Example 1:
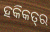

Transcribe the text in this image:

ହକିକତ୍‌ର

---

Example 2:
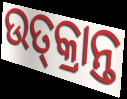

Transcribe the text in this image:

ଉତ୍‌କ୍ରାନ୍ତ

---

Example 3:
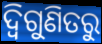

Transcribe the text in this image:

ଦ୍ୱିଗୁଣିତରୁ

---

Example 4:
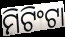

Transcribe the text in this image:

ମିଟିଂଟା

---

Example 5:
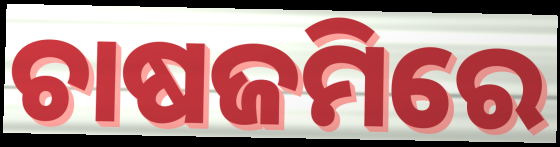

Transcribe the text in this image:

ଚାଷଜମିରେ